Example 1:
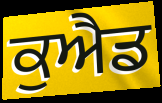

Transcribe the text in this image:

ਕੁਐਡ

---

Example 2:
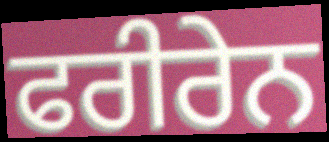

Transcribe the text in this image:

ਫਰੀਰੇਨ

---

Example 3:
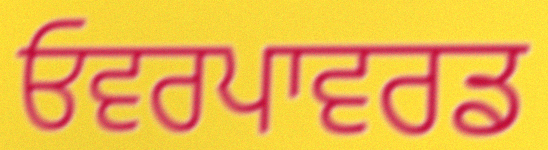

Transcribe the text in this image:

ਓਵਰਪਾਵਰਡ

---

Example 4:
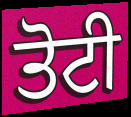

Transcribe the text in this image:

ਤੋਟੀ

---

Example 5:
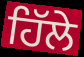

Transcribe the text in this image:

ਹਿੱਲੇ